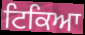
ਟਿਕਿਆ